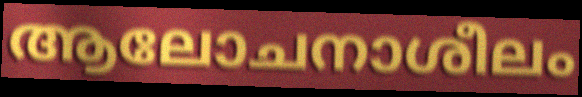
ആലോചനാശീലം